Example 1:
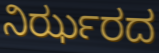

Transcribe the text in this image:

ನಿರ್ಝರದ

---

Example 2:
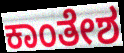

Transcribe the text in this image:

ಕಾಂತೇಶ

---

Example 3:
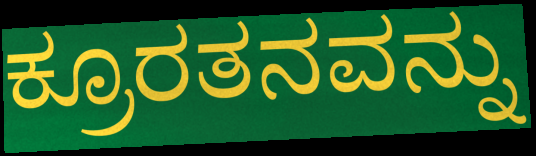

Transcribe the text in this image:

ಕ್ರೂರತನವನ್ನು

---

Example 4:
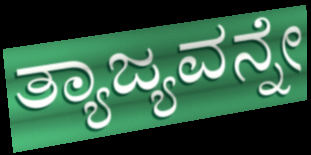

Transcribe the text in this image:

ತ್ಯಾಜ್ಯವನ್ನೇ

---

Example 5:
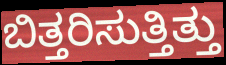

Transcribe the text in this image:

ಬಿತ್ತರಿಸುತ್ತಿತ್ತು